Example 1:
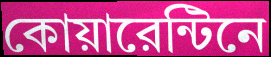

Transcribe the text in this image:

কোয়ারেন্টিনে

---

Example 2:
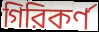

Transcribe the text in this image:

গিরিকর্ণ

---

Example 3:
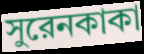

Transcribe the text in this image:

সুরেনকাকা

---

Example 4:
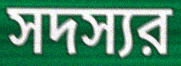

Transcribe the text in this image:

সদস্যর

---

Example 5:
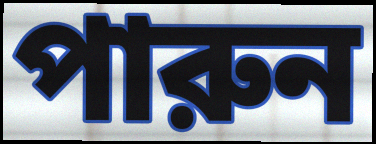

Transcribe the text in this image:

পারুন